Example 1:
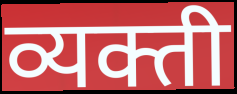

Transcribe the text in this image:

व्यक्‍ती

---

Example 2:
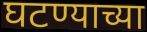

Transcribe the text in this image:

घटण्याच्या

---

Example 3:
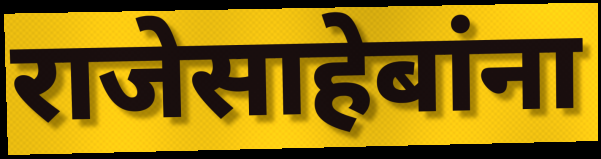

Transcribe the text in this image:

राजेसाहेबांना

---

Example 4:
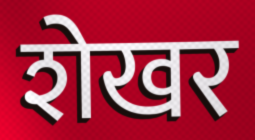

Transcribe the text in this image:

शेखर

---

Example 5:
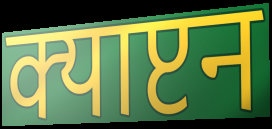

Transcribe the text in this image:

क्याप्टन